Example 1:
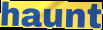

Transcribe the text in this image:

haunt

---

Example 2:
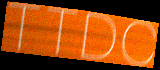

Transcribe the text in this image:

TTDC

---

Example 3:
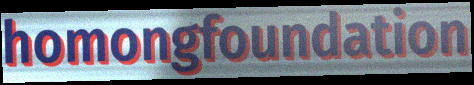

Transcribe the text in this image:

homongfoundation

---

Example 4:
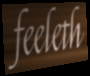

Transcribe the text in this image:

feeleth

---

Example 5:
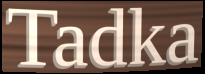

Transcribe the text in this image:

Tadka